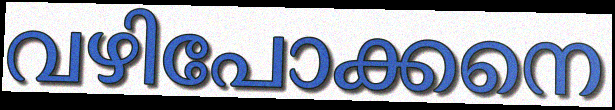
വഴിപോക്കനെ